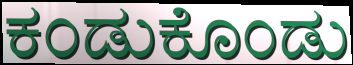
ಕಂಡುಕೊಂಡು